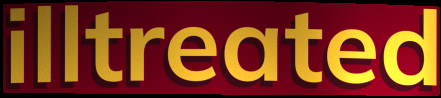
illtreated